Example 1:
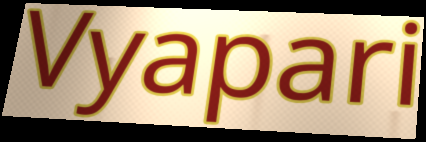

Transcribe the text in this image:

Vyapari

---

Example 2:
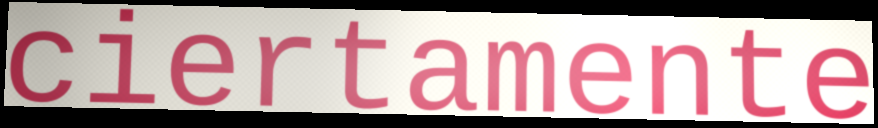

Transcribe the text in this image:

ciertamente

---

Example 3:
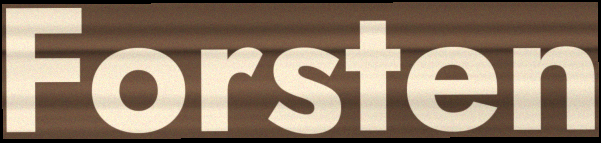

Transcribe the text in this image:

Forsten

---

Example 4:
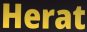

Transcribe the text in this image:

Herat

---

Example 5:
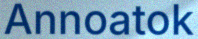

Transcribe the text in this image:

Annoatok